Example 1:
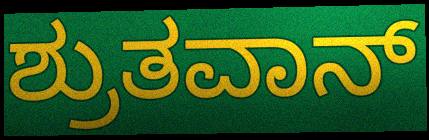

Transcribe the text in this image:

ಶ್ರುತವಾನ್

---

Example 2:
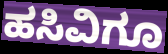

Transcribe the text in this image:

ಹಸಿವಿಗೂ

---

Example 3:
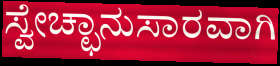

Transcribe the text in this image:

ಸ್ವೇಚ್ಛಾನುಸಾರವಾಗಿ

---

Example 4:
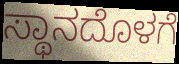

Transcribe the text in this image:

ಸ್ಥಾನದೊಳಗೆ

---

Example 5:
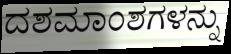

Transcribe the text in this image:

ದಶಮಾಂಶಗಳನ್ನು